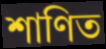
শাণিত